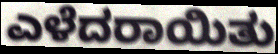
ಎಳೆದರಾಯಿತು